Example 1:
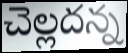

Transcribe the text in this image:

చెల్లదన్న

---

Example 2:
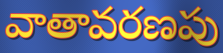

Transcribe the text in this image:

వాతావరణపు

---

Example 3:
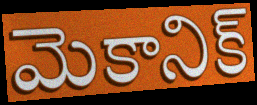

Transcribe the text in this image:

మెకానిక్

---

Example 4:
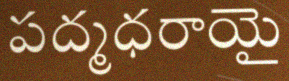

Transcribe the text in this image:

పద్మధరాయై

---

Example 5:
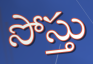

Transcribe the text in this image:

సోస్తు